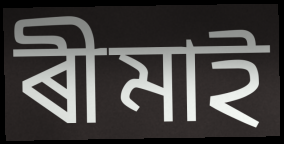
ৰীমাই